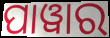
ପାୱାର